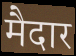
मैदार